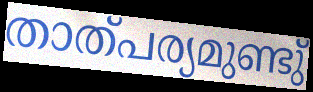
താത്പര്യമുണ്ടു്